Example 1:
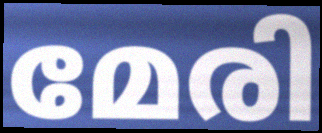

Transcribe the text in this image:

മേരി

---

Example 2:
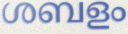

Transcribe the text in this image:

ശബളം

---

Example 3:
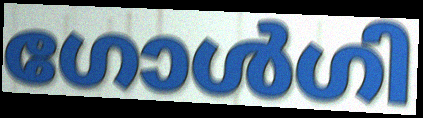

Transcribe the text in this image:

ഗോൾഗി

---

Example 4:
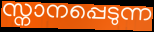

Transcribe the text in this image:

സ്നാനപ്പെടുന്ന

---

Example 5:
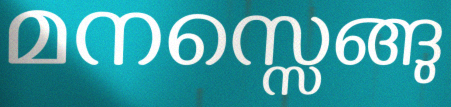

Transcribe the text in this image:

മനസ്സെങ്ങു